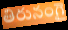
తిరునంగై